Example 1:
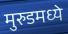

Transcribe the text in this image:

मुरुडमध्ये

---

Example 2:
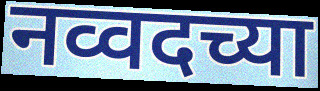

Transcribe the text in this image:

नव्वदच्या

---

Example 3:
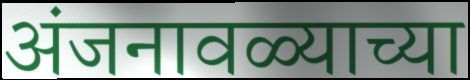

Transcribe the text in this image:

अंजनावळ्याच्या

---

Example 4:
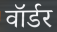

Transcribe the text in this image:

वॉर्डर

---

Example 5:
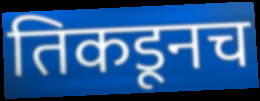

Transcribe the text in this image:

तिकडूनच